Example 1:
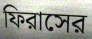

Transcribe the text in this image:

ফিরাসের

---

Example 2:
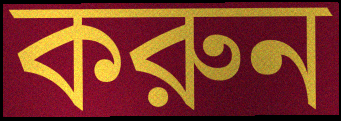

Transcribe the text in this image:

করুন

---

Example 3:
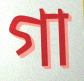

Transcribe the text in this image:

গা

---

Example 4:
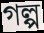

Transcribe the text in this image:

গল্প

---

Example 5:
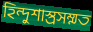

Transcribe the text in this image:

হিন্দুশাস্ত্রসম্মত